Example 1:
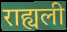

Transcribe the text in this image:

राह्यली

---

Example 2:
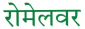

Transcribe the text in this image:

रोमेलवर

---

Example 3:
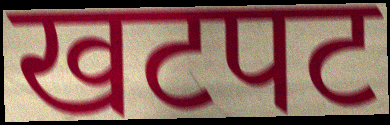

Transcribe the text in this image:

खटपट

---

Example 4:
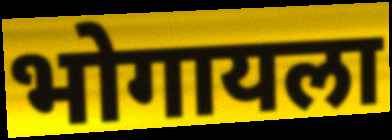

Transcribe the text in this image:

भोगायला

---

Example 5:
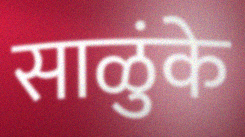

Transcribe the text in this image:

साळुंके